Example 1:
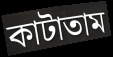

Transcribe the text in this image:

কাটাতাম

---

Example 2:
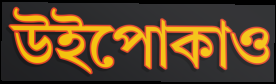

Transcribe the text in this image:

উইপোকাও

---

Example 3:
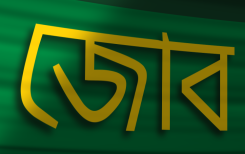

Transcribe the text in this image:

জোব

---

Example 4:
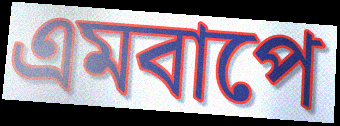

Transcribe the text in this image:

এমবাপে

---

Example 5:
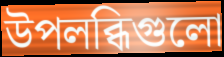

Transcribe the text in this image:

উপলব্ধিগুলো